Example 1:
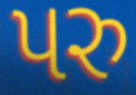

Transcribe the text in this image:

પરુ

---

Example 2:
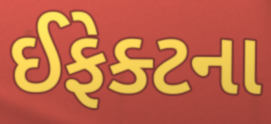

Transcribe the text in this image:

ઈફેક્ટના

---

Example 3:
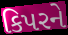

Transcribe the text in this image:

કિપરને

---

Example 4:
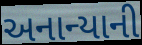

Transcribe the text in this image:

અનાન્યાની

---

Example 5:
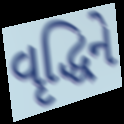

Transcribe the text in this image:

વૃદ્ધિને